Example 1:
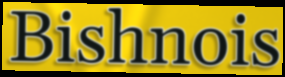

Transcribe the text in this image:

Bishnois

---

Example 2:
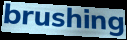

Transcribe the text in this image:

brushing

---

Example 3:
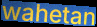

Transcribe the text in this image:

wahetan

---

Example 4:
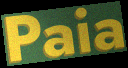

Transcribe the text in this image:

Paia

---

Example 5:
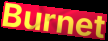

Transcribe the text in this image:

Burnet